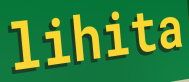
lihita